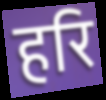
हरि